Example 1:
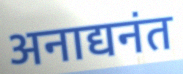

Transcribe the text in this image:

अनाद्यनंत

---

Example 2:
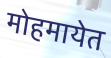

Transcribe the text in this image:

मोहमायेत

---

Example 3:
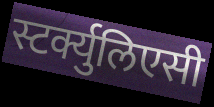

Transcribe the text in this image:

स्टर्क्युलिएसी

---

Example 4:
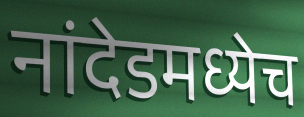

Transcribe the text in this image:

नांदेडमध्येच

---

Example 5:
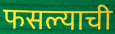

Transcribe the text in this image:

फसल्याची